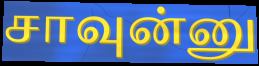
சாவுன்னு